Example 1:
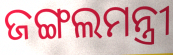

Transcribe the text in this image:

ଜଙ୍ଗଲମନ୍ତ୍ରୀ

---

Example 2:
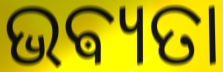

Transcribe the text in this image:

ଭଵ୍ୟତା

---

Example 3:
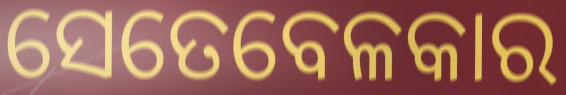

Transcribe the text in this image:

ସେତେବେଳକାର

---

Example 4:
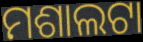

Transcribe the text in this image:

ମଶାଲଟା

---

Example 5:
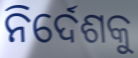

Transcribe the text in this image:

ନିର୍ଦେଶକୁ